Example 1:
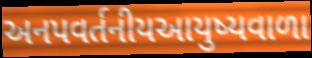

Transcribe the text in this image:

અનપવર્તનીયઆયુષ્યવાળા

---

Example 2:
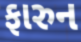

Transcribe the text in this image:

ફારુન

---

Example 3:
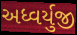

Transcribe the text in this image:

અધ્વર્યુજી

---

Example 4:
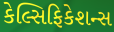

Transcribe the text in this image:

કેલ્સિફિકેશન્સ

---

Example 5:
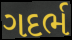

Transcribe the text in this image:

ગદર્ભ